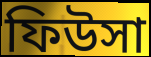
ফিউসা